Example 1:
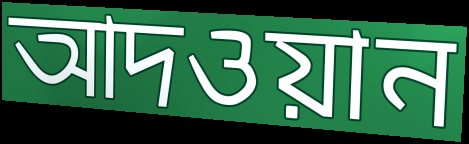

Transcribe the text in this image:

আদওয়ান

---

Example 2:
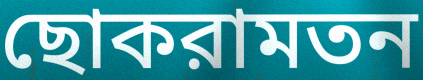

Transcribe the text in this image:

ছোকরামতন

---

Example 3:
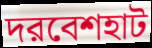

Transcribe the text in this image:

দরবেশহাট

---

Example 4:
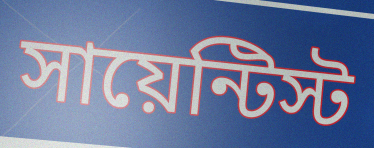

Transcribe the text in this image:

সায়েন্টিস্ট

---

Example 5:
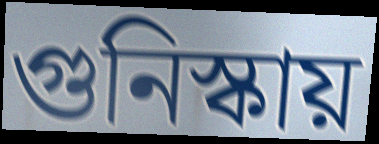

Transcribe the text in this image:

গুনিস্কায়